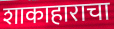
शाकाहाराचा